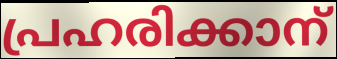
പ്രഹരിക്കാന്